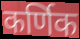
कर्णिक